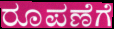
ರೂಪಣೆಗೆ